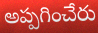
అప్పగించేరు